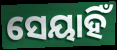
ସେୟାହିଁ